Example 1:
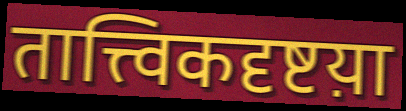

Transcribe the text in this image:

तात्त्विकदृष्टय़ा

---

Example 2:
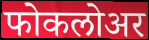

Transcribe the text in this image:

फोकलोअर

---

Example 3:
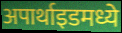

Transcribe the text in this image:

अपार्थाइडमध्ये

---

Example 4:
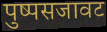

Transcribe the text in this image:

पुष्पसजावट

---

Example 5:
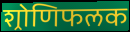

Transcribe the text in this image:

श्रोणिफलक